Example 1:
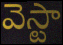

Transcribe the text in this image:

వెస్టా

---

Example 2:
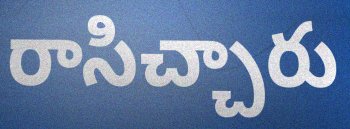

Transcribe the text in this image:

రాసిచ్చారు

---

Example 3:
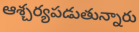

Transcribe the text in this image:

ఆశ్చర్యపడుతున్నారు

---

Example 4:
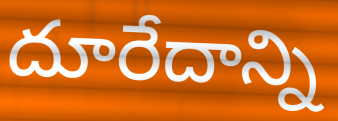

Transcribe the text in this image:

దూరేదాన్ని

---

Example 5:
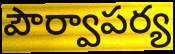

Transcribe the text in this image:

పౌర్వాపర్య